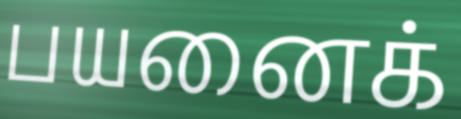
பயனைக்